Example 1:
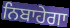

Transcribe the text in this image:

ਨਿਬਾਹੇਗਾ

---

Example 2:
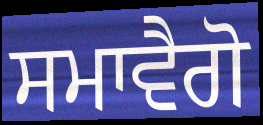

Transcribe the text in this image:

ਸਮਾਵੈਗੋ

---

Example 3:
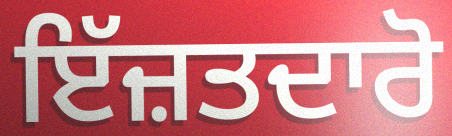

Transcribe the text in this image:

ਇੱਜ਼ਤਦਾਰੋ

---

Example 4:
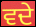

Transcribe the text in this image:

ਵਦੇ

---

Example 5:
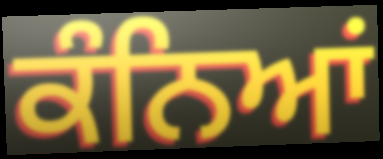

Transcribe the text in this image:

ਕੰਨਿਆਂ